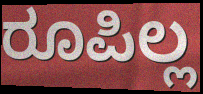
ರೂಪಿಲ್ಲ